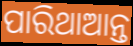
ପାରିଥାଆନ୍ତ